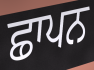
ਛਾਪਨ